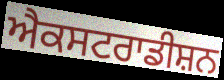
ਐਕਸਟਰਾਡੀਸ਼ਨ